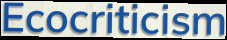
Ecocriticism